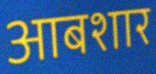
आबशार